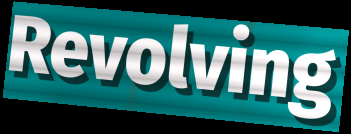
Revolving